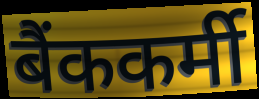
बैंककर्मी